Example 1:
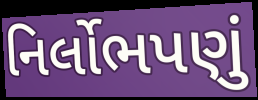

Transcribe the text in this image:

નિર્લોભપણું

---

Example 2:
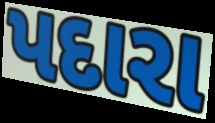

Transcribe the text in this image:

પદારા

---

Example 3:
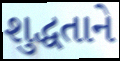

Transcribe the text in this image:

શુદ્ધતાને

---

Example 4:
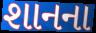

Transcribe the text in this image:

શાનના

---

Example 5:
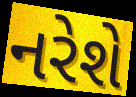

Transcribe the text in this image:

નરેશે